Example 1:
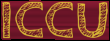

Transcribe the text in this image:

ICCU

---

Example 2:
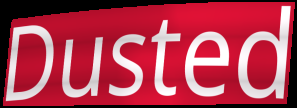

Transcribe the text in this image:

Dusted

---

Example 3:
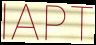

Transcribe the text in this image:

IAPT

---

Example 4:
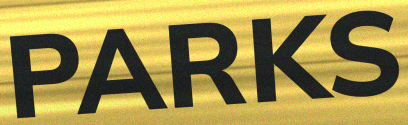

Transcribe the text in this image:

PARKS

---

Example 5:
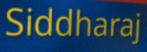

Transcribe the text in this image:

Siddharaj